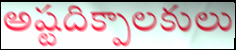
అష్టదిక్పాలకులు